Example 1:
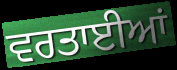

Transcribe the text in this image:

ਵਰਤਾਈਆਂ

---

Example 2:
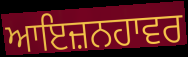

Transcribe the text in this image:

ਆਇਜ਼ਨਹਾਵਰ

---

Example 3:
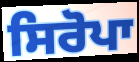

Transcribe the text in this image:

ਸਿਰੋਪਾ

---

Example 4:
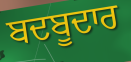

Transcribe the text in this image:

ਬਦਬੂਦਾਰ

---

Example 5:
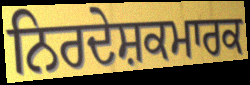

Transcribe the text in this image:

ਨਿਰਦੇਸ਼ਕਮਾਰਕ